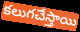
కలుగచేస్తాయి